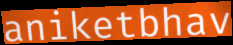
aniketbhav